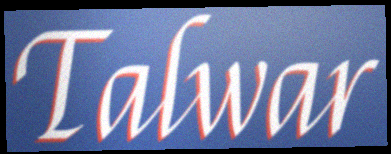
Talwar